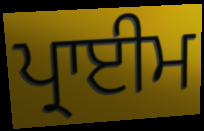
ਪ੍ਰਾਈਮ